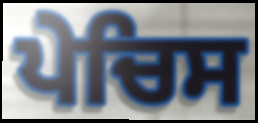
ਪੇਚਿਸ